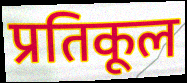
प्रतिकूल